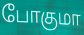
போகுமா